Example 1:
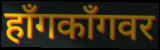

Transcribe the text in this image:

हाँगकाँगवर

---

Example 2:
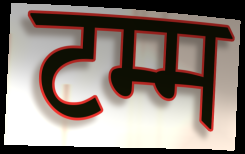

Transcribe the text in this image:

टम्म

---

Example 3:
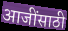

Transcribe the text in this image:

आजींसाठी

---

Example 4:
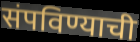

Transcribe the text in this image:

संपविण्याची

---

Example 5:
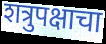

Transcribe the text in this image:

शत्रुपक्षाचा